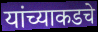
यांच्याकडचे